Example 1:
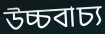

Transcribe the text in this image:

উচ্চবাচ্য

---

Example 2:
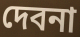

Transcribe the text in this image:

দেবনা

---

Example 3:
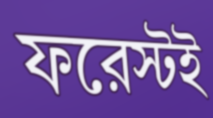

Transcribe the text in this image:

ফরেস্টই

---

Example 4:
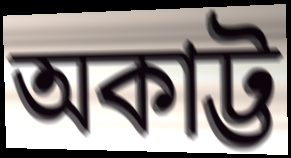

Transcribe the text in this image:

অকাট্ট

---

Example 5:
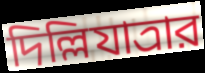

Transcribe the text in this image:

দিল্লিযাত্রার